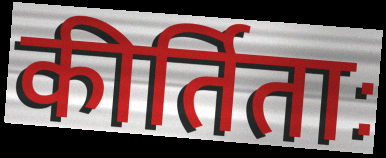
कीर्तिताः